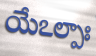
యేఽల్పాః